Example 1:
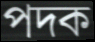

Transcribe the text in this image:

পদক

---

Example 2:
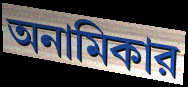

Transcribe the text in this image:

অনামিকার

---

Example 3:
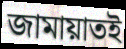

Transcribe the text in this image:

জামায়াতই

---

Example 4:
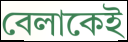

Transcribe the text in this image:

বেলাকেই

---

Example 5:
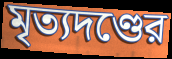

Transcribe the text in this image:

মৃত্যদণ্ডের